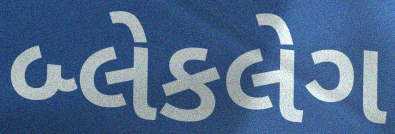
બ્લેકલેગ